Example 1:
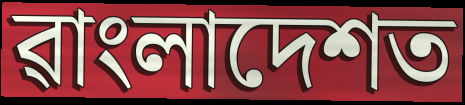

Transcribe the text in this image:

ৱাংলাদেশত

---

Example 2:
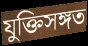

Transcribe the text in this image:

যুক্তিসঙ্গত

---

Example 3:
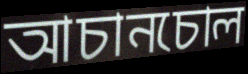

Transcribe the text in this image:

আচানচোল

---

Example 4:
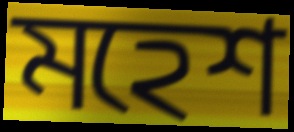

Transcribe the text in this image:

মহেশ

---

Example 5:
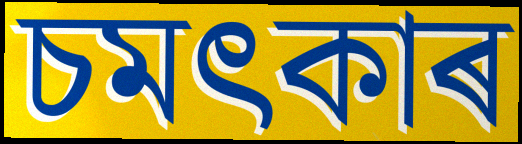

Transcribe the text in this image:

চমৎকাৰ